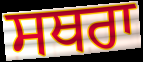
ਸਥਰਾ